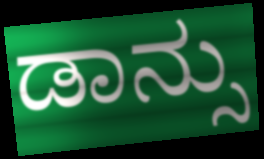
ಡಾನ್ಸು